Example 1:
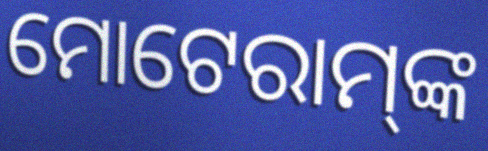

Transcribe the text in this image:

ମୋଟେରାମ୍‌ଙ୍କ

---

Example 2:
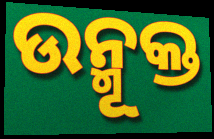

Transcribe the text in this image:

ଉନ୍ମୂକ୍ତ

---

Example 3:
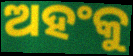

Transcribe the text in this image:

ଅହଂକୁ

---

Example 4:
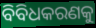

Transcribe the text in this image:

ବିବିଧକରଣକୁ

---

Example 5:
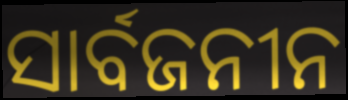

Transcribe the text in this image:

ସାର୍ବଜନୀନ